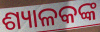
ଶ୍ୟାଳକଙ୍କ